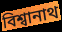
বিশ্বানাথ